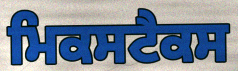
ਮਿਕਸਟੈਕਸ